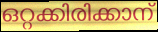
ഒറ്റക്കിരിക്കാന്